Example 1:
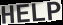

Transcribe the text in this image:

HELP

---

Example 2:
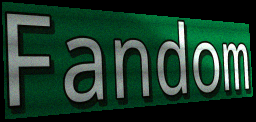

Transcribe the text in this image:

Fandom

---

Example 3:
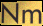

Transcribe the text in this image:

Nm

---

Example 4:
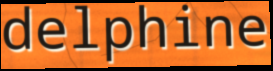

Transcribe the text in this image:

delphine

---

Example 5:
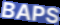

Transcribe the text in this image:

BAPS